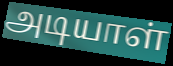
அடியாள்